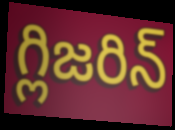
గ్లిజరిన్